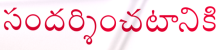
సందర్శించటానికి